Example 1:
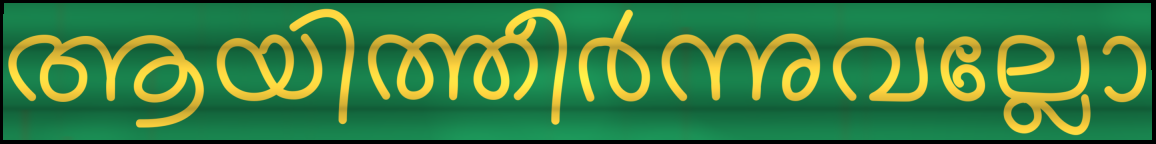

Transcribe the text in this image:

ആയിത്തീർന്നുവല്ലോ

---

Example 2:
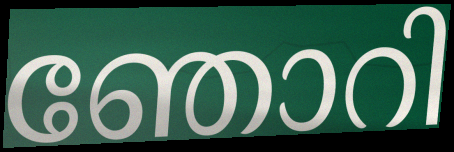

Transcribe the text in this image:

ഞോറി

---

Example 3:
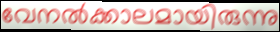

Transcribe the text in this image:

വേനൽക്കാലമായിരുന്നു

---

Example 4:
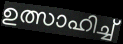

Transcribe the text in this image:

ഉത്സാഹിച്ച്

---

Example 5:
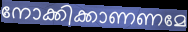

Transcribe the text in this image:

നോക്കിക്കാണണമേ